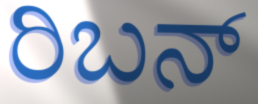
ರಿಬನ್